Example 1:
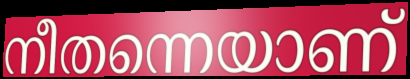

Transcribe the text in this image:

നീതന്നെയാണ്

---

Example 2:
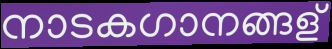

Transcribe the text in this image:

നാടകഗാനങ്ങള്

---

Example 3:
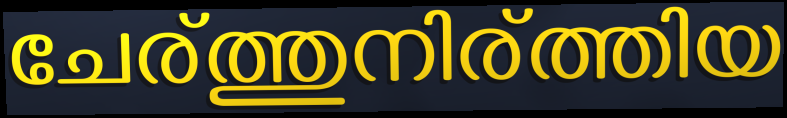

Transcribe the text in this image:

ചേര്ത്തുനിര്ത്തിയ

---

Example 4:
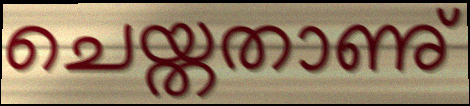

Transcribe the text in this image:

ചെയ്തതാണു്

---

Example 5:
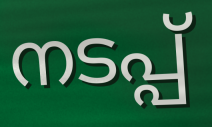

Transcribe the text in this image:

നടപ്പ്